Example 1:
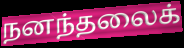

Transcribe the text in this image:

நனந்தலைக்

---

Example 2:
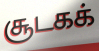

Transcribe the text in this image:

சூடகக்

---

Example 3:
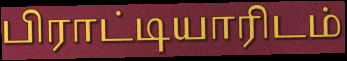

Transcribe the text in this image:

பிராட்டியாரிடம்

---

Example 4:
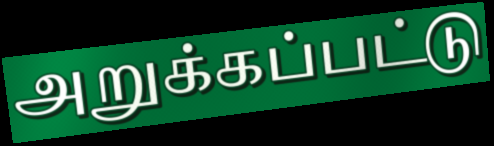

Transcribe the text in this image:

அறுக்கப்பட்டு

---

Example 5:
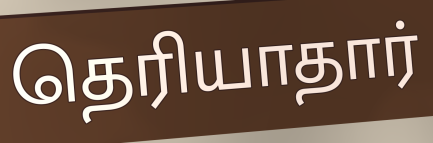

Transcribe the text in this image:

தெரியாதார்